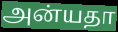
அன்யதா